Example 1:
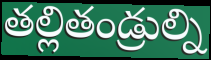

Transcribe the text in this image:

తల్లితండ్రుల్ని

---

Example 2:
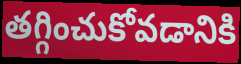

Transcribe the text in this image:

తగ్గించుకోవడానికి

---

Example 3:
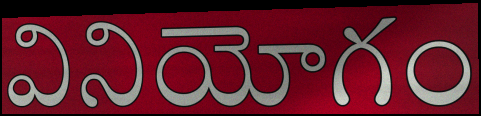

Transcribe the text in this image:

వినియోగం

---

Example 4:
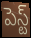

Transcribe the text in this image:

పెస్ట్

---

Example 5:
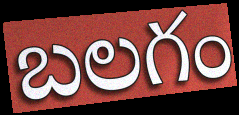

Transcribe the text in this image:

బలగం